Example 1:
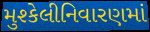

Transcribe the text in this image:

મુશ્કેલીનિવારણમાં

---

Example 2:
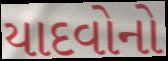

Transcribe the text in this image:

યાદવોનો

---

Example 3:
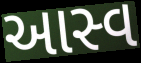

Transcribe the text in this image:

આસ્વ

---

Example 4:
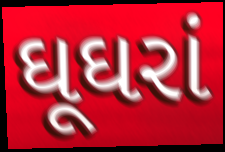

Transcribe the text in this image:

ઘૂઘરાં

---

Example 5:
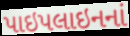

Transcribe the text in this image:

પાઇપલાઇનનાં